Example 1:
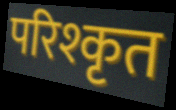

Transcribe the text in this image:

परिश्कृत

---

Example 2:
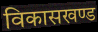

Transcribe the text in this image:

विकासखण्‍ड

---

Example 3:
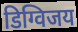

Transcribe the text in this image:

डिग्विजय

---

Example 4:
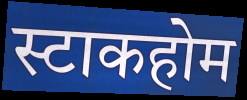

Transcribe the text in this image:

स्टाकहोम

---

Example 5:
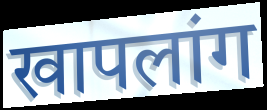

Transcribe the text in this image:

खापलांग